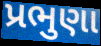
પ્રભુણા